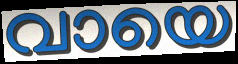
വായെ